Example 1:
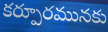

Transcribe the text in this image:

కర్పూరమునకు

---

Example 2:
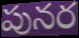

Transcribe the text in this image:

పునర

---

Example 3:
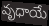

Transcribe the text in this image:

వృధాయే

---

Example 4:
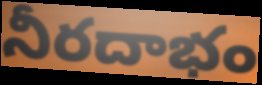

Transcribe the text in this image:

నీరదాభం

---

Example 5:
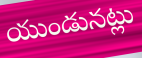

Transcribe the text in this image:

యుండునట్లు